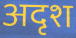
अदृश